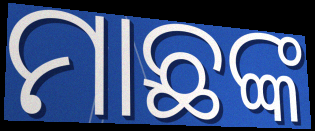
ମାଛଙ୍କ